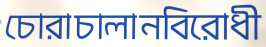
চোরাচালানবিরোধী